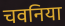
चवनिया